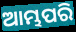
ଆମ୍ଭପରି